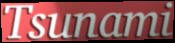
Tsunami